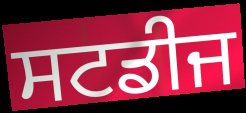
ਸਟਡੀਜ